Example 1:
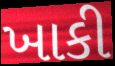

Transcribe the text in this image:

ખાકી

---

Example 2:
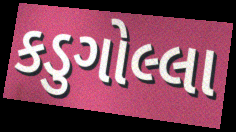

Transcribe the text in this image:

કડુગોલ્લા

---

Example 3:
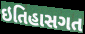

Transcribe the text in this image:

ઇતિહાસગત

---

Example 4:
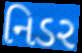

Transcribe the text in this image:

નિડર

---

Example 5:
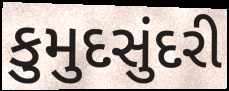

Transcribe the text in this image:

કુમુદસુંદરી